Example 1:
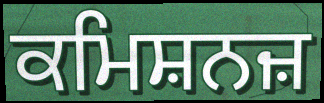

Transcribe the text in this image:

ਕਮਿਸ਼ਨਜ਼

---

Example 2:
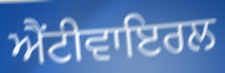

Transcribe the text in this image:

ਐਂਟੀਵਾਇਰਲ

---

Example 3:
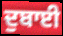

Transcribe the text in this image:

ਦੁਬਾਈ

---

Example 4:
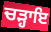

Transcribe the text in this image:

ਚੜ੍ਹਾਇ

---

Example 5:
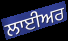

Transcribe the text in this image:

ਲਾਈਅਰ